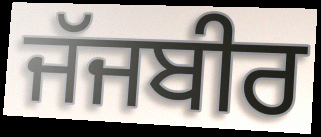
ਜੱਜਬੀਰ